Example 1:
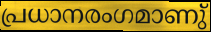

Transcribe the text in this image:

പ്രധാനരംഗമാണു്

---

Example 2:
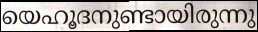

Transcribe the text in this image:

യെഹൂദനുണ്ടായിരുന്നു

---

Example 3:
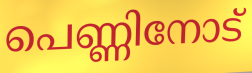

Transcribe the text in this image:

പെണ്ണിനോട്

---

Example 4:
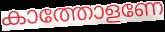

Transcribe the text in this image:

കാത്തോളണേ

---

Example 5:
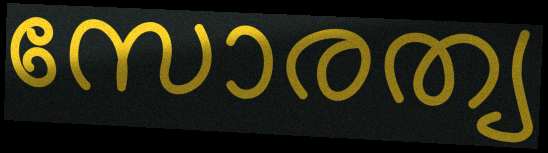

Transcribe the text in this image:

സോരത്യ